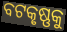
ବଟକୃଷ୍ଣକୁ